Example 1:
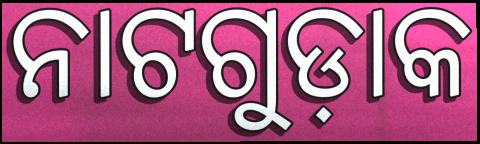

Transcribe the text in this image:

ନାଟଗୁଡ଼ାକ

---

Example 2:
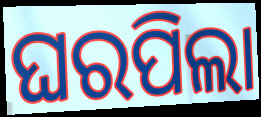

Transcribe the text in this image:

ଘରପିଲା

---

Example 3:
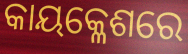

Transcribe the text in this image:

କାୟକ୍ଳେଶରେ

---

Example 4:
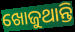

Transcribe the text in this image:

ଖୋଜୁଥାନ୍ତି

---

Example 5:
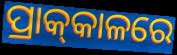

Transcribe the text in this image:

ପ୍ରାକ୍‍କାଳରେ